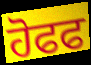
ਹੋਫਫ